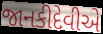
જાનકીદેવીએ